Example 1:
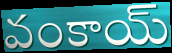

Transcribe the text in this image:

వంకాయ్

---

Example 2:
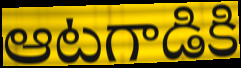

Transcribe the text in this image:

ఆటగాడికి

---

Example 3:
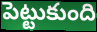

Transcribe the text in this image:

పెట్టుకుంది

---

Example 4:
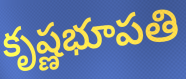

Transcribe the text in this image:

కృష్ణభూపతి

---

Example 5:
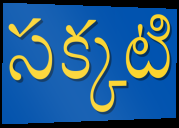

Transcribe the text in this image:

సక్కటి